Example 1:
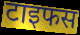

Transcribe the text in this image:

टाइफस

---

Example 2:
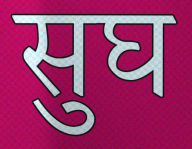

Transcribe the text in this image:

सुघ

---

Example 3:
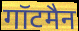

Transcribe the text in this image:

गॉटमैन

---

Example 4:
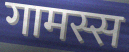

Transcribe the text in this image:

गामस्स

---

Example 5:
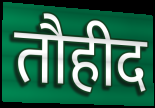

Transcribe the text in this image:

तौहीद